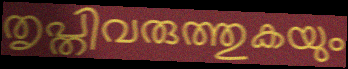
തൃപ്തിവരുത്തുകയും